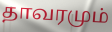
தாவரமும்